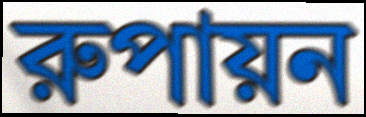
রুপায়ন